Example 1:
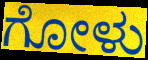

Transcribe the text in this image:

ಗೋಳು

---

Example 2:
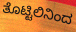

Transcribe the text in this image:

ತೊಟ್ಟಿಲಿನಿಂದ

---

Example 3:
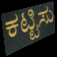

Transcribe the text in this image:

ಕಟ್ಟಿಸು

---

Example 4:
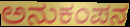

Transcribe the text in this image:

ಅನುಕಂಪನ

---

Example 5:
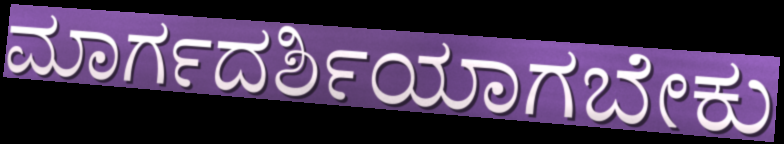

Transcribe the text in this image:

ಮಾರ್ಗದರ್ಶಿಯಾಗಬೇಕು